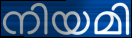
നിയമി